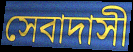
সেবাদাসী